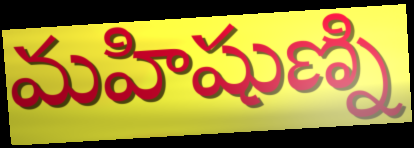
మహిషుణ్ని